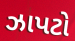
ઝાપટો